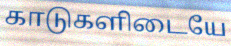
காடுகளிடையே